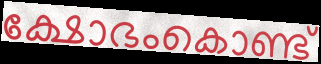
ക്ഷോഭംകൊണ്ട്